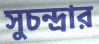
সুচন্দ্রার